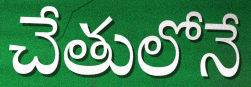
చేతులోనే